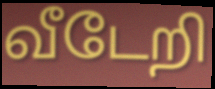
வீடேறி